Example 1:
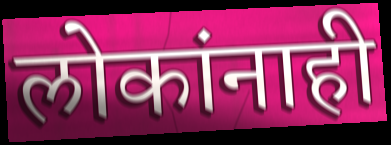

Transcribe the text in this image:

लोकांनाही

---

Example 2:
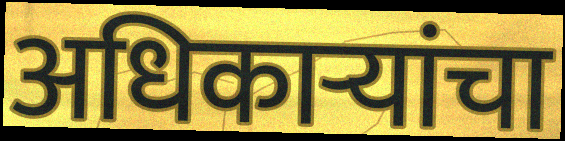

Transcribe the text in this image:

अधिकाऱ्यांचा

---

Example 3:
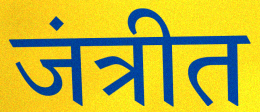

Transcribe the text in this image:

जंत्रीत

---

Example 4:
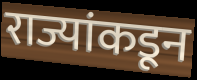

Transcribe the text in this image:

राज्यांकडून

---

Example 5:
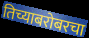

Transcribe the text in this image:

तिच्याबरोबरचा